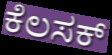
ಕೆಲಸಕ್